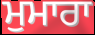
ਮੁਮਾਰਾ